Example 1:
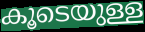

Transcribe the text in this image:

കൂടെയുള്ള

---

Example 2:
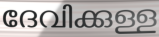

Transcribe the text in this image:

ദേവിക്കുള്ള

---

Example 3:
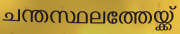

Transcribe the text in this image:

ചന്തസ്ഥലത്തേയ്ക്ക്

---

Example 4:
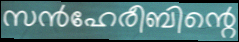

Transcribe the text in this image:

സൻഹേരീബിന്റെ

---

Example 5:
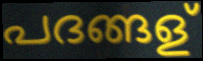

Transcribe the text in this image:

പദങ്ങള്